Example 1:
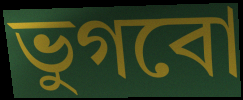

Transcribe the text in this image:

ভুগবো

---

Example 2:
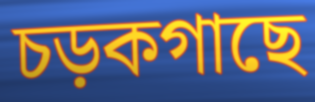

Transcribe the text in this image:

চড়কগাছে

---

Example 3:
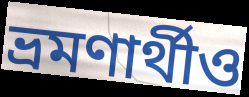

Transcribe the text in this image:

ভ্রমণার্থীও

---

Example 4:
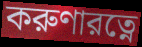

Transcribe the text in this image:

করুণারত্নে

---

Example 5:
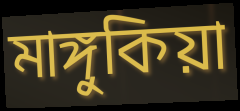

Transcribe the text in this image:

মাঙ্গুকিয়া